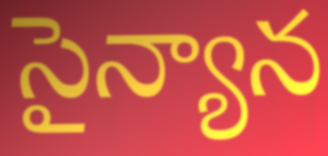
సైన్యాన